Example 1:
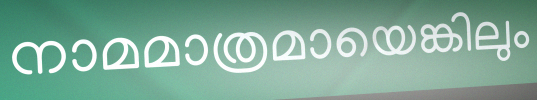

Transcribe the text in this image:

നാമമാത്രമായെങ്കിലും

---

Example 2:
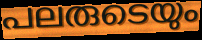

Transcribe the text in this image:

പലരുടെയും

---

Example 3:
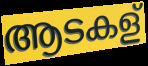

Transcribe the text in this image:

ആടകള്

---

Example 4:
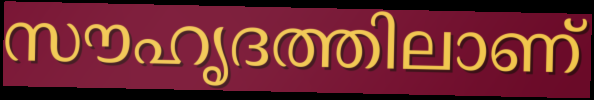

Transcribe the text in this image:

സൗഹൃദത്തിലാണ്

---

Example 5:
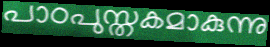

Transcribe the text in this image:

പാഠപുസ്തകമാകുന്നു